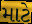
માટે